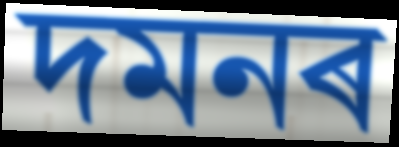
দমনৰ